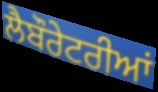
ਲੈਬੌਰੇਟਰੀਆਂ